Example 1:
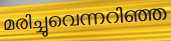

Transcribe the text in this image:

മരിച്ചുവെന്നറിഞ്ഞ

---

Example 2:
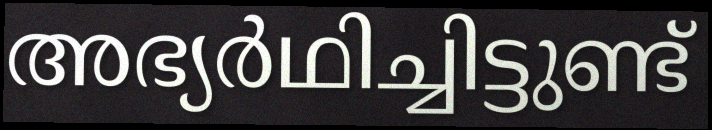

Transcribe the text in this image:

അഭ്യർഥിച്ചിട്ടുണ്ട്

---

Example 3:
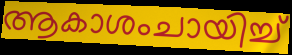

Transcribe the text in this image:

ആകാശംചായിച്ച്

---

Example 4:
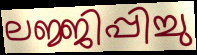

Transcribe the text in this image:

ലജ്ജിപ്പിച്ചു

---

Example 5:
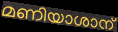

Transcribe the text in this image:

മണിയാശാന്